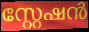
സ്റ്റേഷൻ